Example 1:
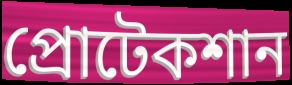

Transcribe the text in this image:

প্রোটেকশান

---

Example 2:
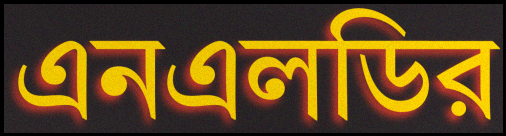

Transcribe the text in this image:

এনএলডির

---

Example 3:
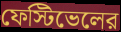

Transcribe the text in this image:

ফেস্টিভেলের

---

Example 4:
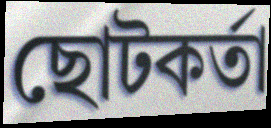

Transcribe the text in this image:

ছোটকর্তা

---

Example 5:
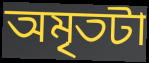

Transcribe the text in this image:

অমৃতটা